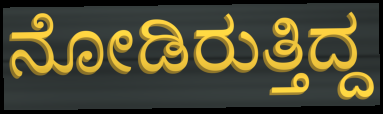
ನೋಡಿರುತ್ತಿದ್ದ